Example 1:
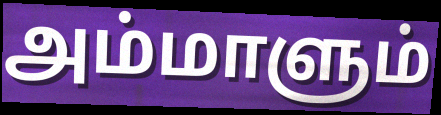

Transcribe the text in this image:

அம்மாளும்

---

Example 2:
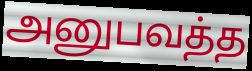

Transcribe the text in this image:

அனுபவத்த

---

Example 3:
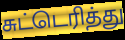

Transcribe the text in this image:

சுட்டெரித்து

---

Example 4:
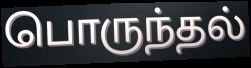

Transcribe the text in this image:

பொருந்தல்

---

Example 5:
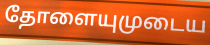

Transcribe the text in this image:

தோளையுமுடைய